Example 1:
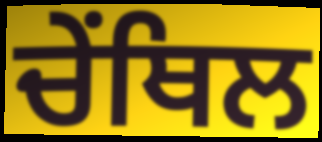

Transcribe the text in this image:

ਚੇਂਥਿਲ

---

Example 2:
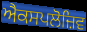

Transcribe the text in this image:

ਐਕਸਪਲੋਜ਼ਿਵ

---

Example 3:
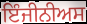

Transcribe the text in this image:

ਇੰਜੀਨੀਅਸ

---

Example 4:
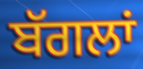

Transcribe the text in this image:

ਬੱਗਲਾਂ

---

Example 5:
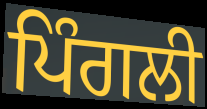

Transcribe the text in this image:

ਪਿੰਗਲੀ